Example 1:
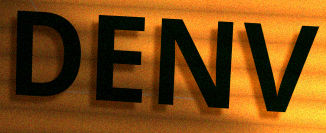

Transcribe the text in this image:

DENV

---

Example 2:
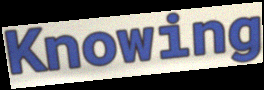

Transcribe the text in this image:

Knowing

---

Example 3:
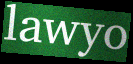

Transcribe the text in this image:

lawyo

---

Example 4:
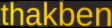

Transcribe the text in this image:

thakben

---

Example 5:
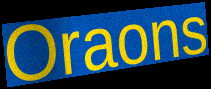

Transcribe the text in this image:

Oraons